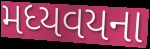
મધ્યવયના